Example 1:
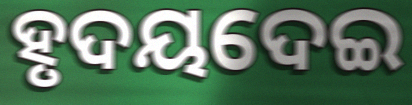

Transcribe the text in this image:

ହୃଦୟଦେଇ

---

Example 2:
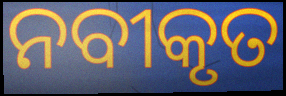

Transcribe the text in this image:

ନବୀକୃତ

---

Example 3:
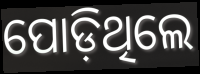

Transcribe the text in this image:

ପୋଡ଼ିଥିଲେ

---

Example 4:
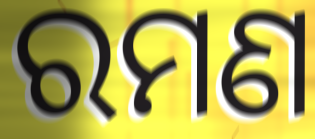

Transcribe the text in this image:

ରମଣ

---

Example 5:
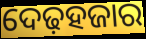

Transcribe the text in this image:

ଦେଢ଼ହଜାର